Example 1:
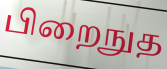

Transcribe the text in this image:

பிறைநுத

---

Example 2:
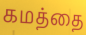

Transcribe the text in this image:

கமத்தை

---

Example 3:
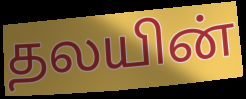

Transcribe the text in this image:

தலயின்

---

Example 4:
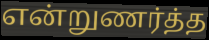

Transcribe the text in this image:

என்றுணர்த்த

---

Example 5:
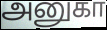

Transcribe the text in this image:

அனுகா